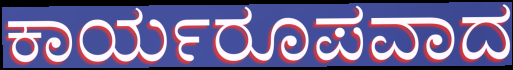
ಕಾರ್ಯರೂಪವಾದ